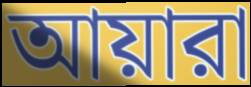
আয়ারা